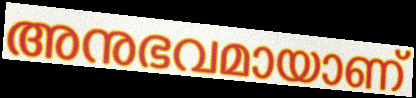
അനുഭവമായാണ്